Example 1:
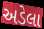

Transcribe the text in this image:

અડેલા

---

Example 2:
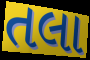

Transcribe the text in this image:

તલા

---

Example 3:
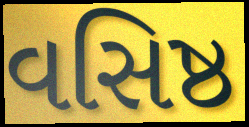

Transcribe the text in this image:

વસિષ્ઠ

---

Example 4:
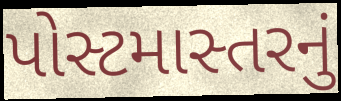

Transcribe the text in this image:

પોસ્ટમાસ્તરનું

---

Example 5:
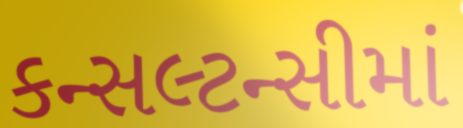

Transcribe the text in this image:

કન્સલ્ટન્સીમાં